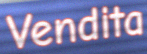
Vendita